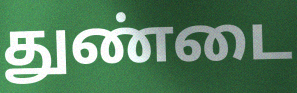
துண்டை